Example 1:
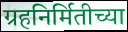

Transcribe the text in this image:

ग्रहनिर्मितीच्या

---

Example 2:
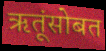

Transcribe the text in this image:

ऋतूंसोबत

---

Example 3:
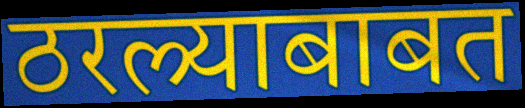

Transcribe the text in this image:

ठरल्याबाबत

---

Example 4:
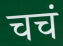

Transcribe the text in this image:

चचं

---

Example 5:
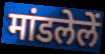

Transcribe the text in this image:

मांडलेलें